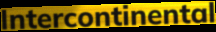
Intercontinental